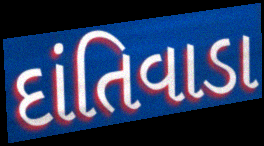
દાંતિવાડા